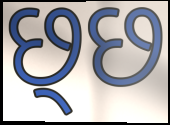
છ્છ